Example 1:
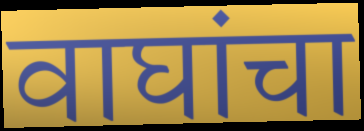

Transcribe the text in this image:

वाघांचा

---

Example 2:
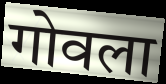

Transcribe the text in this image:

गोवला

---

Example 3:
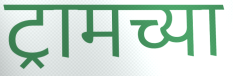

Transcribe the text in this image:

ट्रामच्या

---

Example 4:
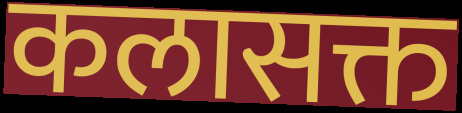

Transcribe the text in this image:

कलासक्त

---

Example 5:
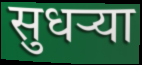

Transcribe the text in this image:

सुधर्‍या